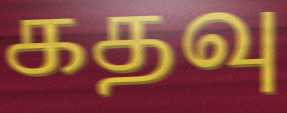
கதவு